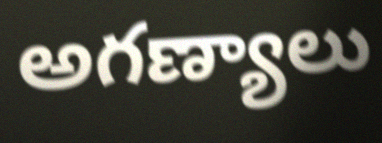
అగణ్యాలు